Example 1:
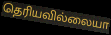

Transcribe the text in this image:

தெரியவில்லையா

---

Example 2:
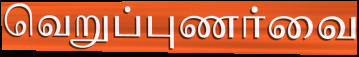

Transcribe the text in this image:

வெறுப்புணர்வை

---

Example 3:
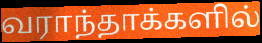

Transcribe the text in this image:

வராந்தாக்களில்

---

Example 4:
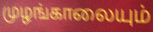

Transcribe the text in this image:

முழங்காலையும்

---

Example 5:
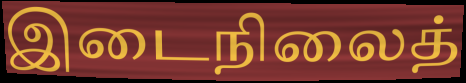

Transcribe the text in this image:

இடைநிலைத்